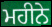
ਮਹੀਨੇ